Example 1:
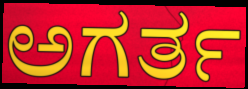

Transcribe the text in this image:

ಅಗರ್ತ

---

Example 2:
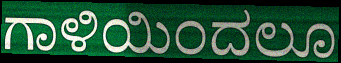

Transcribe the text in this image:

ಗಾಳಿಯಿಂದಲೂ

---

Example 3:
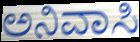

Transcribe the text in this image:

ಅನಿವಾಸಿ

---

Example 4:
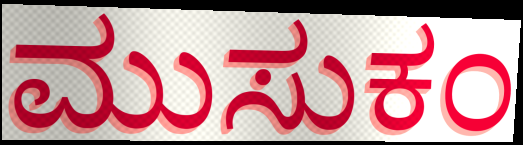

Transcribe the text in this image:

ಮುಸುಕಂ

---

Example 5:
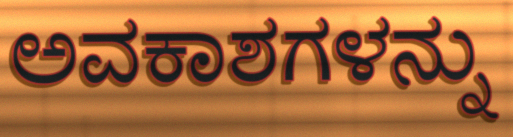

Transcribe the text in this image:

ಅವಕಾಶಗಳನ್ನು